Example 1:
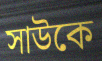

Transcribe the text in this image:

সাউকে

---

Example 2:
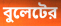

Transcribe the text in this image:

বুলেটের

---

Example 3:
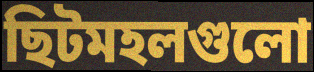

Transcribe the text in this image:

ছিটমহলগুলো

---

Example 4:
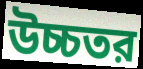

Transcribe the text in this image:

উচ্চতর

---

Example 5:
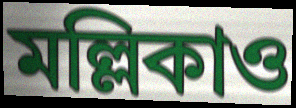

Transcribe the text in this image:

মল্লিকাও